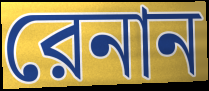
রেনান